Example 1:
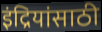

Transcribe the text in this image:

इंद्रियांसाठी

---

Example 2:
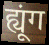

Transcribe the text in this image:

ह्यूंग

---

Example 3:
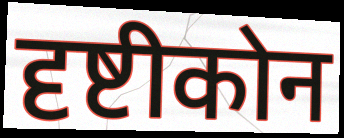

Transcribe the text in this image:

दृष्टीकोन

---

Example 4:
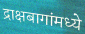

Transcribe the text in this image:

द्राक्षबागांमध्ये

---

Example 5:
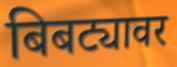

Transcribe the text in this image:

बिबट्यावर